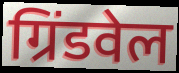
ग्रिंडवेल